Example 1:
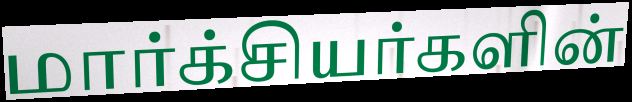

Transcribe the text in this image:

மார்க்சியர்களின்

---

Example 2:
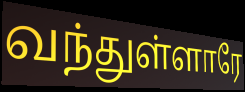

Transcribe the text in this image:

வந்துள்ளாரே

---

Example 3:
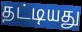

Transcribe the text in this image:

தட்டியது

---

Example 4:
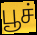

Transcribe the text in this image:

பூச்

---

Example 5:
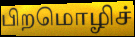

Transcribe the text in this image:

பிறமொழிச்